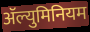
ॲल्युमिनियम